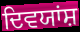
ਦਿਵਯਾਂਸ਼